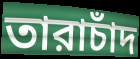
তারাচাঁদ